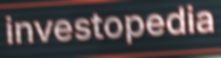
investopedia